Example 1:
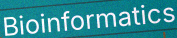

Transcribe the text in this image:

Bioinformatics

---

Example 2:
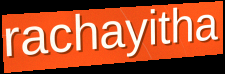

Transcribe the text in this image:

rachayitha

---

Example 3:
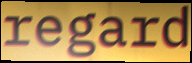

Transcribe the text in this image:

regard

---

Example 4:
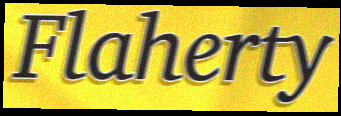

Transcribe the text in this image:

Flaherty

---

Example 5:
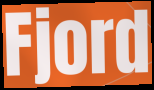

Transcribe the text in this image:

Fjord